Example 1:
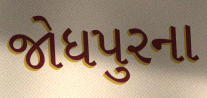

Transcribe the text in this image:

જોધપુરના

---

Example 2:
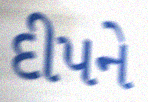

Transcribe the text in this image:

દીપને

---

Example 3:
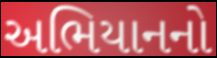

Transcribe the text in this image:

અભિયાનનો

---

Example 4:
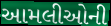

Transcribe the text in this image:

આમલીઓની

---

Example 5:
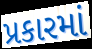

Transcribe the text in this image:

પ્રકારમાં